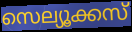
സെല്യൂക്കസ്